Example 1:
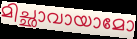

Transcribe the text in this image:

മിച്ഛാവായാമോ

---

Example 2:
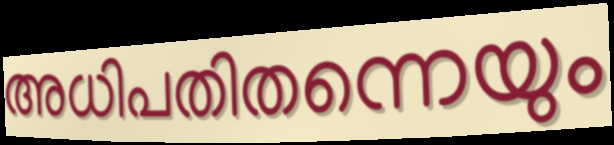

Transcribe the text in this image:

അധിപതിതന്നെയും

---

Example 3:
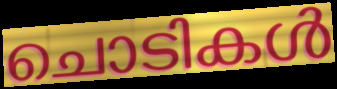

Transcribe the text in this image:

ചൊടികൾ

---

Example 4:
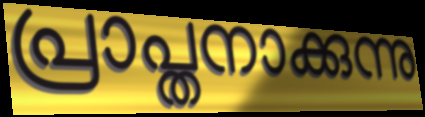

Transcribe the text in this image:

പ്രാപ്തനാക്കുന്നു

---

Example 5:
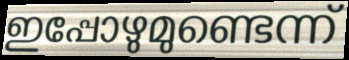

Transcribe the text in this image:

ഇപ്പോഴുമുണ്ടെന്ന്